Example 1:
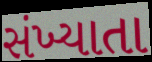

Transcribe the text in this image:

સંખ્યાતા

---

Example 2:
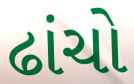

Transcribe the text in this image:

ઢાંચો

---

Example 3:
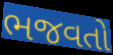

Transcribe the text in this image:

ભજવતો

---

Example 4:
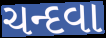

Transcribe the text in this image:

ચન્દવા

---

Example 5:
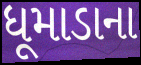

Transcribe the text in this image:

ધૂમાડાના